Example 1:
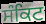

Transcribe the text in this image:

ਸੰਕਿਟ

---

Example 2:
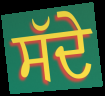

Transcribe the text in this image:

ਸੱਦੇ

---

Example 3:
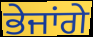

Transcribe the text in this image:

ਭੇਜਾਂਗੇ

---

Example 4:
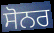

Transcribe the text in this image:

ਸੋਨਰ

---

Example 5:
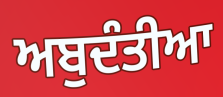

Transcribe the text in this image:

ਅਬੁਦੰਤੀਆ